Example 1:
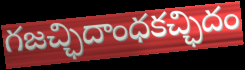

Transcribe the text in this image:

గజచ్ఛిదాంధకచ్ఛిదం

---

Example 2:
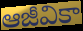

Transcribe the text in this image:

ఆజీవికా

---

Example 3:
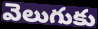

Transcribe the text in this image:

వెలుగుకు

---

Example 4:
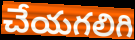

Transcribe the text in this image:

చేయగలిగి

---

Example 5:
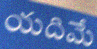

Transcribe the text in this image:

యదిమే